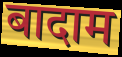
बादाम